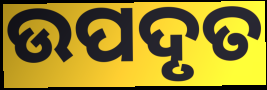
ଉପଦୃତ